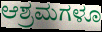
ಆಶ್ರಮಗಳೂ